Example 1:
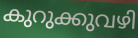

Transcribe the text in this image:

കുറുക്കുവഴി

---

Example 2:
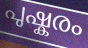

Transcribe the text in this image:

പുഷ്കരം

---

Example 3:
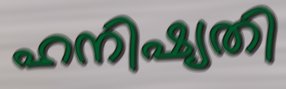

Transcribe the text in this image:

ഹനിഷ്യതി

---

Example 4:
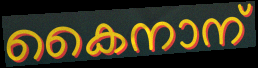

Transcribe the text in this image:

കൈനാന്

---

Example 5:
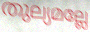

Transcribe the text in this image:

തുല്യമല്ലേ